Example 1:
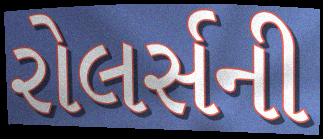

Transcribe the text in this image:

રોલર્સની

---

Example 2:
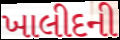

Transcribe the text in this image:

ખાલીદની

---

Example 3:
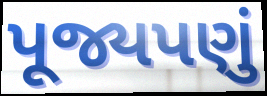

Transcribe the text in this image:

પૂજ્યપણું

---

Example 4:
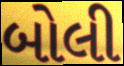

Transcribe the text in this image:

બોલી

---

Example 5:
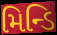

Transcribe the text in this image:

મિન્ડિ